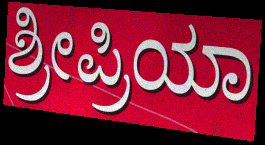
ಶ್ರೀಪ್ರಿಯಾ